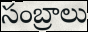
సంబ్రాలు